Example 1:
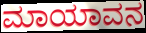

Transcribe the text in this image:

ಮಾಯಾವನ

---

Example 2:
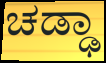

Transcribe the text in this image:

ಚಡ್ಢಾ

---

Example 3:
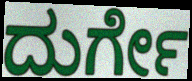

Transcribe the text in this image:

ದುರ್ಗೇ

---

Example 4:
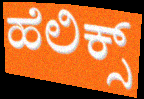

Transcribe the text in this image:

ಹೆಲಿಕ್ಸ್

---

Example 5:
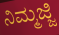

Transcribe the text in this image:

ನಿಮ್ಮಜ್ಜಿ